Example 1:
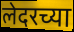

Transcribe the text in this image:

लेदरच्या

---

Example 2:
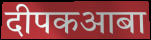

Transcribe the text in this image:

दीपकआबा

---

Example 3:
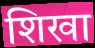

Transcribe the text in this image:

शिखा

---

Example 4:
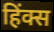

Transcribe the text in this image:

हिंक्स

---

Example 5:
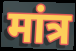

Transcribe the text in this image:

मांत्र